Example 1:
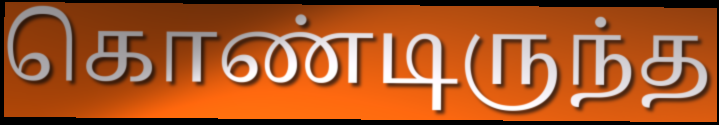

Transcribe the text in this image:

கொண்டிருந்த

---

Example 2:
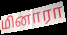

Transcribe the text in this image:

மினாரா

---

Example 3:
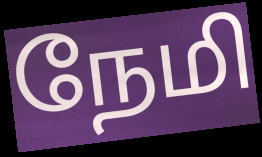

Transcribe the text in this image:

நேமி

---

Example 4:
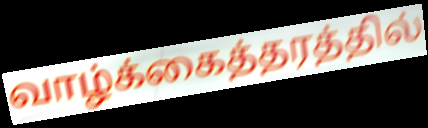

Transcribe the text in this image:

வாழ்க்கைத்தரத்தில்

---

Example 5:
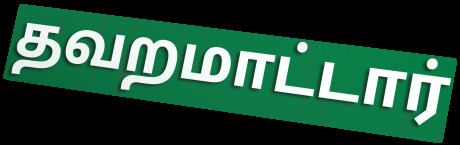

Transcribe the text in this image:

தவறமாட்டார்